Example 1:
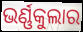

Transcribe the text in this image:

ଭର୍ଣ୍ଣକୁଲାର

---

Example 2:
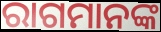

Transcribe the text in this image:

ରାଗମାନଙ୍କ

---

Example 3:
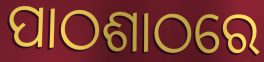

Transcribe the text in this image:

ପାଠଶାଠରେ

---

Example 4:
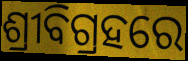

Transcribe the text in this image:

ଶ୍ରୀବିଗ୍ରହରେ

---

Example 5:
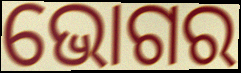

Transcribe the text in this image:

ଭୋଗର